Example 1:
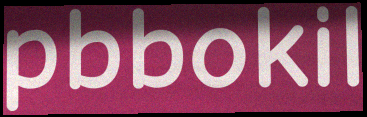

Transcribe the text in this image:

pbbokil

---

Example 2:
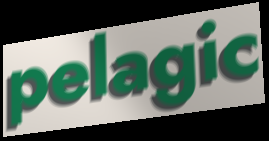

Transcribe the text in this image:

pelagic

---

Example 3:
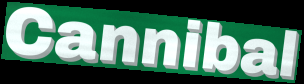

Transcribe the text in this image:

Cannibal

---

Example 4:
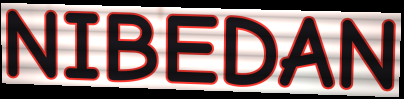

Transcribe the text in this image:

NIBEDAN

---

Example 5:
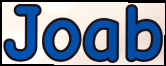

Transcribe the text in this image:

Joab